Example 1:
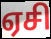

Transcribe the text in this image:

ஏசி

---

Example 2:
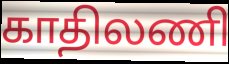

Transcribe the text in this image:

காதிலணி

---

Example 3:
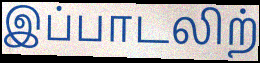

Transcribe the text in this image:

இப்பாடலிற்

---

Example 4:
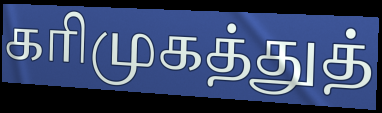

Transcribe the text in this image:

கரிமுகத்துத்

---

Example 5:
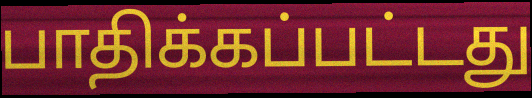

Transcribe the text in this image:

பாதிக்கப்பட்டது